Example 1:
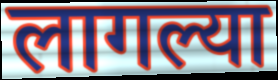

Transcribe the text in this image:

लागल्‍या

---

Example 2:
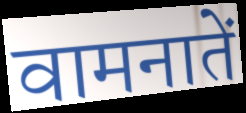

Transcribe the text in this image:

वामनातें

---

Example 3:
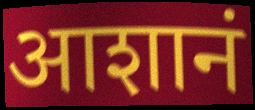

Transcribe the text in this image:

आशानं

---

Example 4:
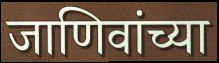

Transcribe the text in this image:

जाणिवांच्या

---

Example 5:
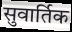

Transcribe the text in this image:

सुवार्तिक